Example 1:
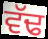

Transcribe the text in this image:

ਵੱਢ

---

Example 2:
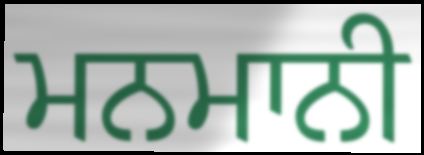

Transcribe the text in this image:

ਮਨਮਾਨੀ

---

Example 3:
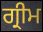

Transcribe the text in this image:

ਗ੍ਰੀਮ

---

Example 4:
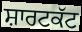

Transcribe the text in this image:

ਸ਼ਾਰਟਕੱਟ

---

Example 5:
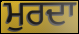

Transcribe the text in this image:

ਮੁਰਦਾ